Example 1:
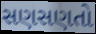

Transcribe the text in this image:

સણસણતો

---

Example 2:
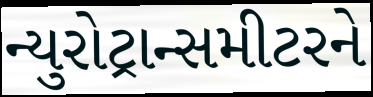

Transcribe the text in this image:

ન્યુરોટ્રાન્સમીટરને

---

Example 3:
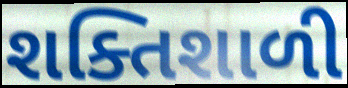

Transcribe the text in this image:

શક્તિશાળી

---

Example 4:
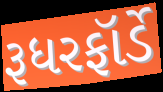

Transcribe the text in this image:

રૂધરફૉર્ડે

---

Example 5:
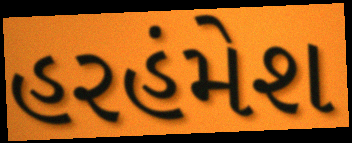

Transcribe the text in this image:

હરહંમેશ